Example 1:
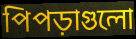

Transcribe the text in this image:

পিপড়াগুলো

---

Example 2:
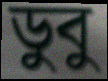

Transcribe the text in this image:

ডুবু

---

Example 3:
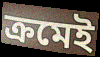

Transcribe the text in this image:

ক্রমেই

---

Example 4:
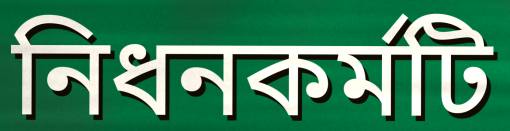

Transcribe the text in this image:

নিধনকর্মটি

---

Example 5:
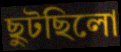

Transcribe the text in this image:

ছুটছিলো